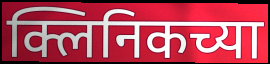
क्लिनिकच्या